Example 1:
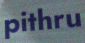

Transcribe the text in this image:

pithru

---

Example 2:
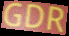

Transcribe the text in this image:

GDR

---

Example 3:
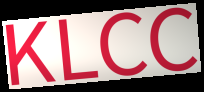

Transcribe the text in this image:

KLCC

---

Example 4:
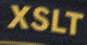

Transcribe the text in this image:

XSLT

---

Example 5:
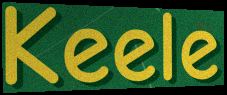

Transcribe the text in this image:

Keele